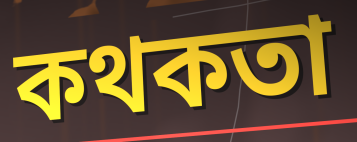
কথকতা